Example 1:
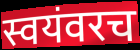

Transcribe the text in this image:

स्वयंवरच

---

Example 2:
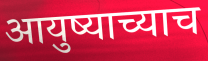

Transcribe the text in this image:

आयुष्याच्याच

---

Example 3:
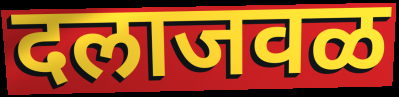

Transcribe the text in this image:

दलाजवळ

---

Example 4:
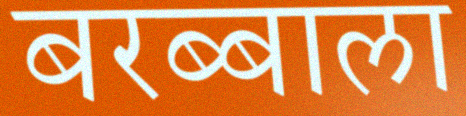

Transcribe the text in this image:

बरब्बाला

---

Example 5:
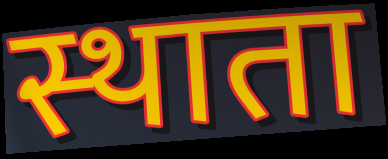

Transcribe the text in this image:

स्थाता